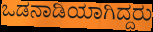
ಒಡನಾಡಿಯಾಗಿದ್ದರು